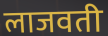
लाजवती